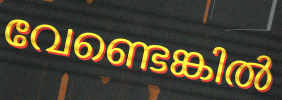
വേണ്ടെങ്കിൽ